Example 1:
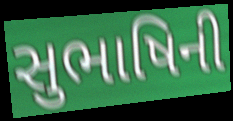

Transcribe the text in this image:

સુભાષિની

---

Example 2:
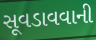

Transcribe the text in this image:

સૂવડાવવાની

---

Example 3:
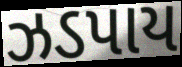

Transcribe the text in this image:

ઝડપાય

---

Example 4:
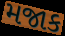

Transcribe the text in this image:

મજાક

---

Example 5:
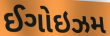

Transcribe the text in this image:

ઈગોઇઝમ